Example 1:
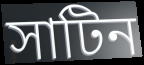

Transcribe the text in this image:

সাটিন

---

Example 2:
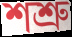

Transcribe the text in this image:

শশ্রু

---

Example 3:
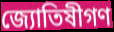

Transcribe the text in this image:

জ্যোতিষীগণ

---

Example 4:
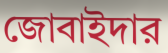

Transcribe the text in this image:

জোবাইদার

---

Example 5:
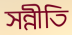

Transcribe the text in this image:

সন্নীতি